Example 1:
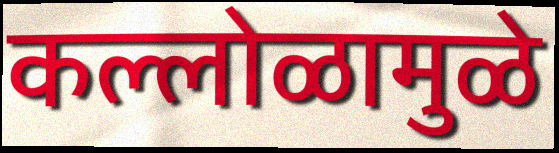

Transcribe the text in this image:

कल्लोळामुळे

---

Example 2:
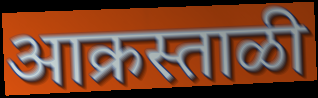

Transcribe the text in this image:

आक्रस्ताळी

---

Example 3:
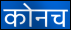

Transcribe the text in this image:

कोनच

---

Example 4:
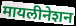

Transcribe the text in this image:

मायलीनेशन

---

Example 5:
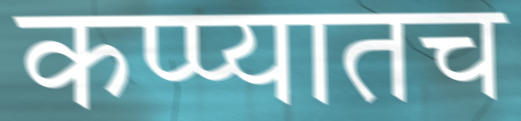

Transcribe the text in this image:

कप्प्यातच